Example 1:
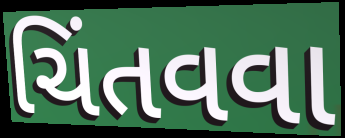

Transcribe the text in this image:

ચિંતવવા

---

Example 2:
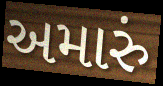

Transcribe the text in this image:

અમારું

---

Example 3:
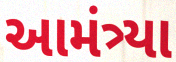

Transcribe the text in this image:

આમંત્ર્યા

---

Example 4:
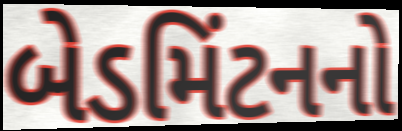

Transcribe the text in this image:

બેડમિંટનનો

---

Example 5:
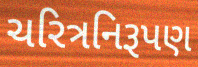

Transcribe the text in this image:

ચરિત્રનિરૂપણ